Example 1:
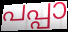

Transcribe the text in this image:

പപ്പാ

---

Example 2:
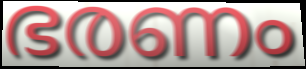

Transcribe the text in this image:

ഭരണം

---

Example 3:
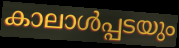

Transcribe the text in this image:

കാലാൾപ്പടയും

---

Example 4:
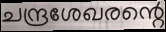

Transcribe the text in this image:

ചന്ദ്രശേഖരന്റെ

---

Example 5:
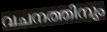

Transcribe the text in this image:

വചനത്തിനും